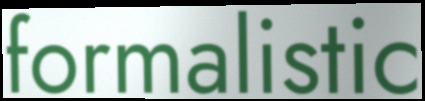
formalistic